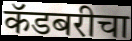
कॅडबरीचा